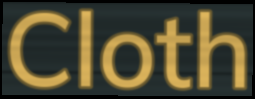
Cloth